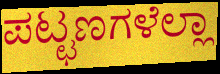
ಪಟ್ಟಣಗಳೆಲ್ಲಾ